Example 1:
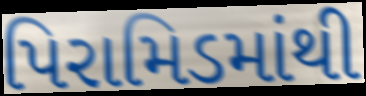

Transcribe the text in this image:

પિરામિડમાંથી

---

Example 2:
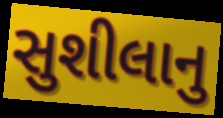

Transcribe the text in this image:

સુશીલાનુ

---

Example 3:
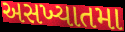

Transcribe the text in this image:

અસખ્યાતમા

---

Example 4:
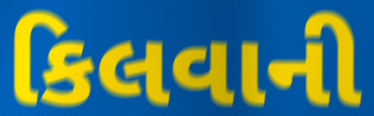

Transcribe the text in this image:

કિલવાની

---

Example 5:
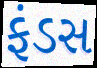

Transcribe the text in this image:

ફંડસ